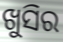
ଖୁସିର